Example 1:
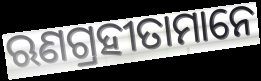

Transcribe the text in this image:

ଋଣଗ୍ରହୀତାମାନେ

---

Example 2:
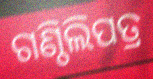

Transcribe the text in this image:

ଗଣ୍ଠିଲିପତ୍ର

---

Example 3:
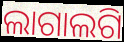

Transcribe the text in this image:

ଲାଗାଲଗି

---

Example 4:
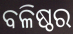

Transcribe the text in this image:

ବଳିଷ୍ଠର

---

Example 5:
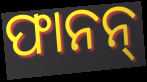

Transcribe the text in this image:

ଫାନନ୍